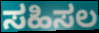
ಸಹಿಸಲ